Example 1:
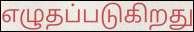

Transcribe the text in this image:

எழுதப்படுகிறது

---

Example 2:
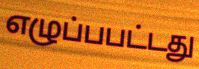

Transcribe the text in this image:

எழுப்பபட்டது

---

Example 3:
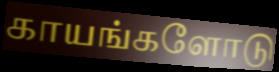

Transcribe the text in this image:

காயங்களோடு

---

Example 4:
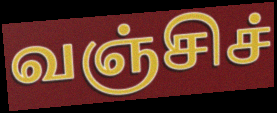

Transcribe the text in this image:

வஞ்சிச்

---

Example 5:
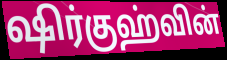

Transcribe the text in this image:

ஷிர்குஹ்வின்